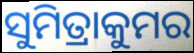
ସୁମିତ୍ରାକୁମର